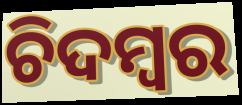
ଚିଦମ୍ବର